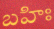
బహిః